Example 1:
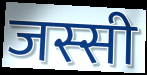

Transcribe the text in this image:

जस्सी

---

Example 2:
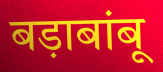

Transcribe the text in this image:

बड़ाबांबू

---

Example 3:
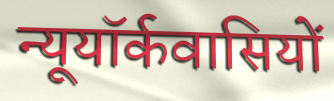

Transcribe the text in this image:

न्यूयॉर्कवासियों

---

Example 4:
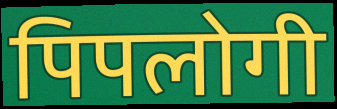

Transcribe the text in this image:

पिपलोगी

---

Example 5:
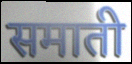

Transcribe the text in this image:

समाती